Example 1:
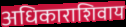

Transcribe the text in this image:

अधिकाराशिवाय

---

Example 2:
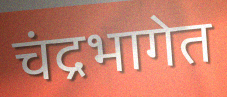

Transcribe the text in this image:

चंद्रभागेत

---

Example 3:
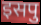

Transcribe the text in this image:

इसपु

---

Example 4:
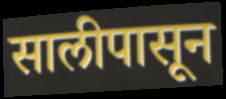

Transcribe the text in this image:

सालीपासून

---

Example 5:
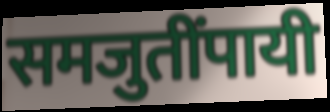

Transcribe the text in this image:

समजुतींपायी